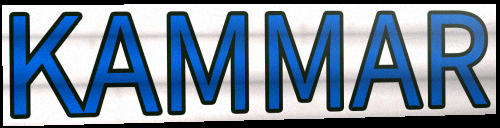
KAMMAR